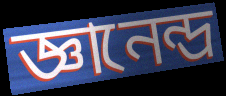
জ্ঞানেন্দ্র